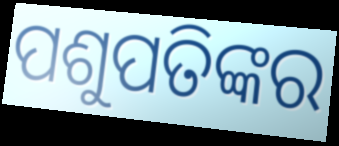
ପଶୁପତିଙ୍କର